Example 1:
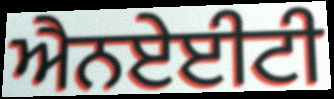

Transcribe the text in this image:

ਐਨਏਈਟੀ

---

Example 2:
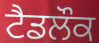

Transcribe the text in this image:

ਟੈਡਲੌਕ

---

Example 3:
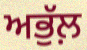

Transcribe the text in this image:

ਅਭੁੱਲ਼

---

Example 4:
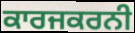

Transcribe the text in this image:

ਕਾਰਜਕਰਨੀ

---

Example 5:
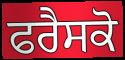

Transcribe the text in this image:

ਫਰੈਸਕੋ